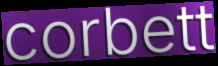
corbett